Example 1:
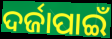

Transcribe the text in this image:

ଦର୍ଜାପାଇଁ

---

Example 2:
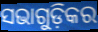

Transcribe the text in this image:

ସଭାଗୁଡ଼ିକର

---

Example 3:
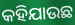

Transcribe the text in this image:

କହିଯାଉଛ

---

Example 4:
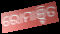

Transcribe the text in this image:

ରୋମାଞ୍ଚିତ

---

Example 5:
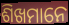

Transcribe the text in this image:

ଶିଖମାନେ